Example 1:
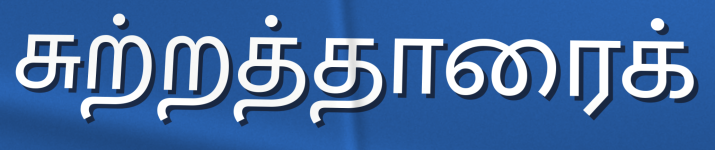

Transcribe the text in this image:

சுற்றத்தாரைக்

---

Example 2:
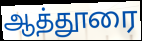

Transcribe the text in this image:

ஆத்தூரை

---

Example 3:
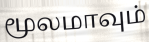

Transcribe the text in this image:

மூலமாவும்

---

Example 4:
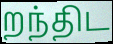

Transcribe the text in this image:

றந்திட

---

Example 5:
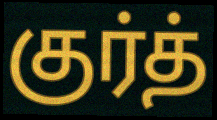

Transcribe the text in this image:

குர்த்